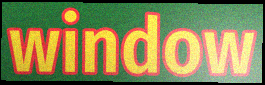
window